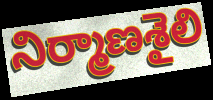
నిర్మాణశైలి